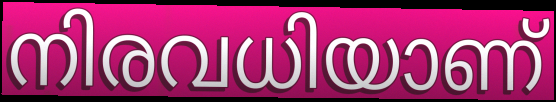
നിരവധിയാണ്